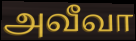
அவீவா